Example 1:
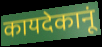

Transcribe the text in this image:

कायदेकानूं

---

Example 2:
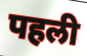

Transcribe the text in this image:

पहली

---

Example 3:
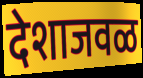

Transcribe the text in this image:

देशाजवळ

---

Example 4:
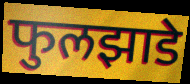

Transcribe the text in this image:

फुलझाडे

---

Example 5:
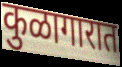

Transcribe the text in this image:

कुळागारात